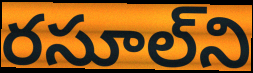
రసూల్‌ని